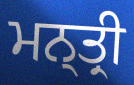
ਮਨ੍ਤ੍ਰੀ